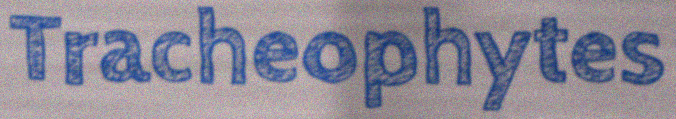
Tracheophytes